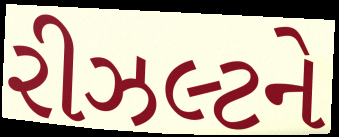
રીઝલ્ટને